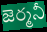
జెర్మనీ